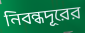
নিবন্ধদূরের